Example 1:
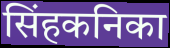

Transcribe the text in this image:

सिंहकनिका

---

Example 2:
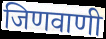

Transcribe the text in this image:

जिणवाणी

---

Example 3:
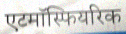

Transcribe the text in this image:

एटमॉस्फियरिक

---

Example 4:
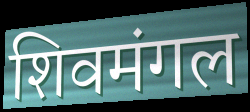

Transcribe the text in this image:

शिवमंगल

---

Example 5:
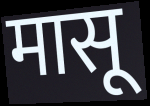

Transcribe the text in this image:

मासू